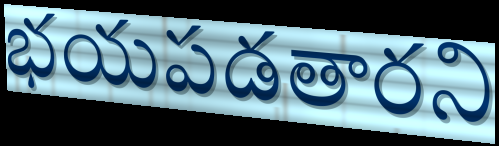
భయపడతారని